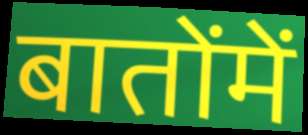
बातोंमें